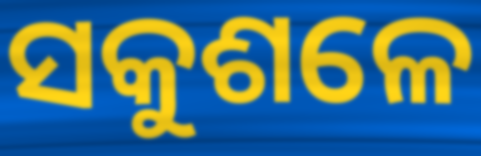
ସକୁଶଳେ